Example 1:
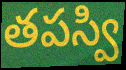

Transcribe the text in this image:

తపస్వి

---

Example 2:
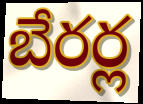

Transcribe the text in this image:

బేరర్ల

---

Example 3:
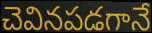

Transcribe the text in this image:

చెవినపడగానే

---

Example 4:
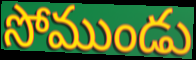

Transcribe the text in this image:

సోముండు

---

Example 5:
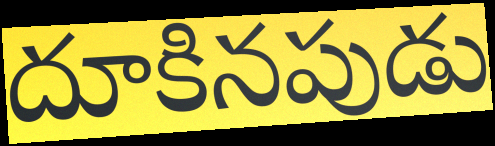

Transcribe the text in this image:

దూకినపుడు